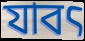
যাবৎ